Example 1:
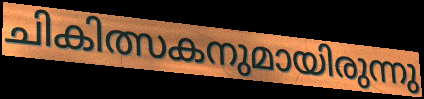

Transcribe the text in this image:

ചികിത്സകനുമായിരുന്നു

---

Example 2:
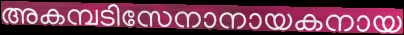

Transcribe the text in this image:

അകമ്പടിസേനാനായകനായ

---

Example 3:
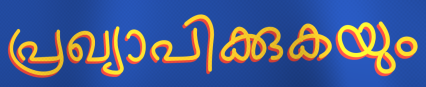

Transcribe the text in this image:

പ്രഖ്യാപിക്കുകയും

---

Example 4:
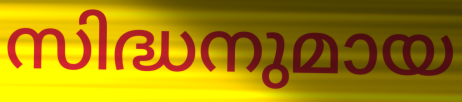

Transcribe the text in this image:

സിദ്ധനുമായ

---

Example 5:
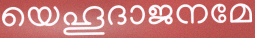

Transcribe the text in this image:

യെഹൂദാജനമേ